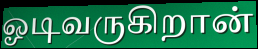
ஓடிவருகிறான்